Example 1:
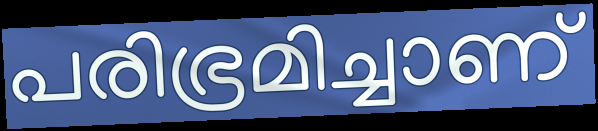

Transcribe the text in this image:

പരിഭ്രമിച്ചാണ്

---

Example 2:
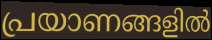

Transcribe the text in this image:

പ്രയാണങ്ങളിൽ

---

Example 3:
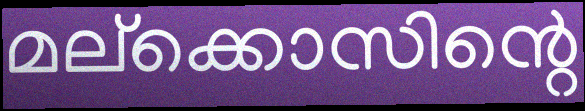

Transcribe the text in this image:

മല്ക്കൊസിന്റെ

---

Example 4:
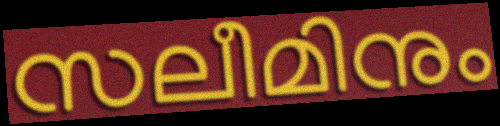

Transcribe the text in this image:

സലീമിനും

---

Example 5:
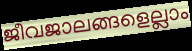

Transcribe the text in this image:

ജീവജാലങ്ങളെല്ലാം